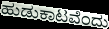
ಹುಡುಕಾಟವೆಂದು